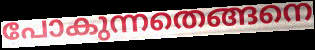
പോകുന്നതെങ്ങനെ